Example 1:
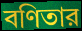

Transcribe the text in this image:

বণিতার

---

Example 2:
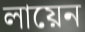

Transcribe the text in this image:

লায়েন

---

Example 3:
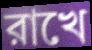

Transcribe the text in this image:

রাখে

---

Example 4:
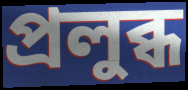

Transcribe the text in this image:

প্রলুব্ধ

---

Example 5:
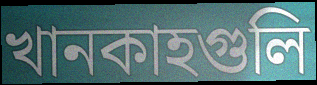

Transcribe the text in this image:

খানকাহগুলি